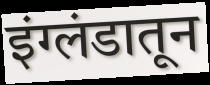
इंग्लंडातून